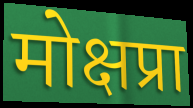
मोक्षप्रा